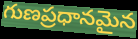
గుణప్రధానమైన